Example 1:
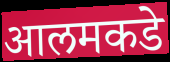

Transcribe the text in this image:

आलमकडे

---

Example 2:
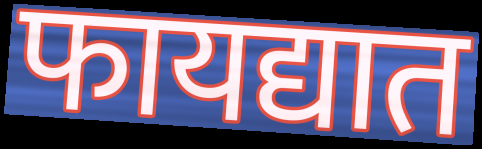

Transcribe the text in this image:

फायद्यात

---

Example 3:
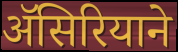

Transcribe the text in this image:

ॲसिरियाने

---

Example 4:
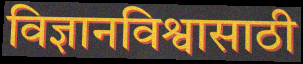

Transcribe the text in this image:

विज्ञानविश्वासाठी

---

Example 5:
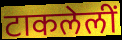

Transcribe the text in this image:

टाकलेलीं